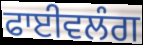
ਫਾਈਵਲੰਗ